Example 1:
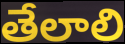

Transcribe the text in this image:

తేలాలి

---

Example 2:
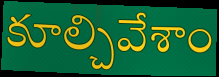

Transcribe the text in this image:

కూల్చివేశాం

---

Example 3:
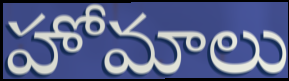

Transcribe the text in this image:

హోమాలు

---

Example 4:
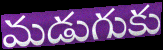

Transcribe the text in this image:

మడుగుకు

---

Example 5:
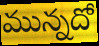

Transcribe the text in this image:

మున్నదో